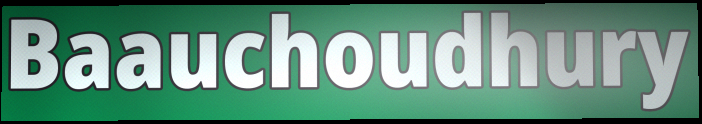
Baauchoudhury